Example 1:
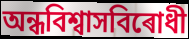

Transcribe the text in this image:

অন্ধবিশ্বাসবিৰোধী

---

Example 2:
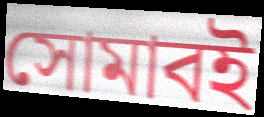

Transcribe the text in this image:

সোমাবই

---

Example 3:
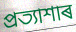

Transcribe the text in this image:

প্ৰত্যাশাৰ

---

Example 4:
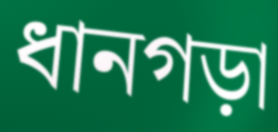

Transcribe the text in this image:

ধানগড়া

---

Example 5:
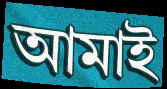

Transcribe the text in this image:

আমাই